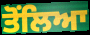
ਤੋਂਲਿਆ